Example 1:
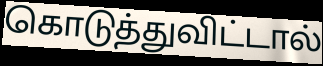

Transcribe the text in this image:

கொடுத்துவிட்டால்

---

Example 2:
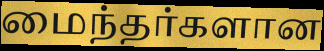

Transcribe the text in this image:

மைந்தர்களான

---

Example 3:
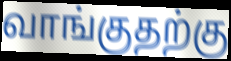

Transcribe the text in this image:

வாங்குதற்கு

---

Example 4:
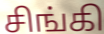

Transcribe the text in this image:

சிங்கி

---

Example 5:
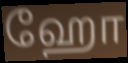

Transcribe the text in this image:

ஹோ